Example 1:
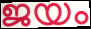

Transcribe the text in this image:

ജയം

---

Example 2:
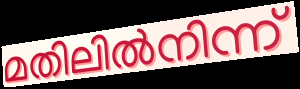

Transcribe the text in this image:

മതിലിൽനിന്ന്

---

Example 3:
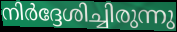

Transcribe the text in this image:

നിർദ്ദേശിച്ചിരുന്നു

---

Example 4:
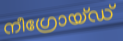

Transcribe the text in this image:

നീഗ്രോയ്ഡ്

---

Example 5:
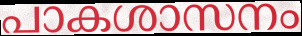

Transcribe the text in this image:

പാകശാസനം